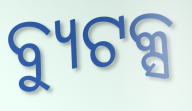
ବ୍ୟୁଟକ୍ସ